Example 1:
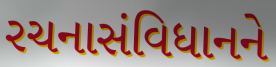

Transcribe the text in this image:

રચનાસંવિધાનને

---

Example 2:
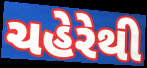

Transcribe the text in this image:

ચહેરેથી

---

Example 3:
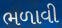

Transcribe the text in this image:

ભળાવી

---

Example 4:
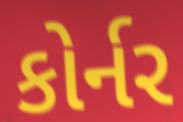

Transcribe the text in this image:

કોર્નર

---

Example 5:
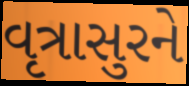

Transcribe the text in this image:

વૃત્રાસુરને